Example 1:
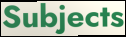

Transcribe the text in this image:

Subjects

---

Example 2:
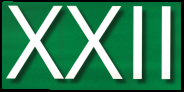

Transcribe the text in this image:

XXII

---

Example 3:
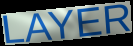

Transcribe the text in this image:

LAYER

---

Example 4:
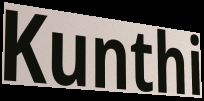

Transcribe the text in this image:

Kunthi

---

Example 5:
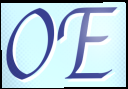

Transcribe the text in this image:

OE